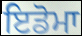
ਇਡੋਮਾ